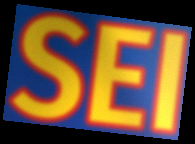
SEI